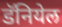
डॅनियेल